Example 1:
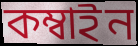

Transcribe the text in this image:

কম্বাইন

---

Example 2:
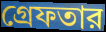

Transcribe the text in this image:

গ্রেফতার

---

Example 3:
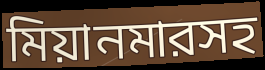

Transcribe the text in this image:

মিয়ানমারসহ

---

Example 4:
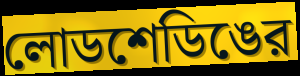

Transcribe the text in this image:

লোডশেডিঙের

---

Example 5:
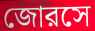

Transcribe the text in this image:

জোরসে